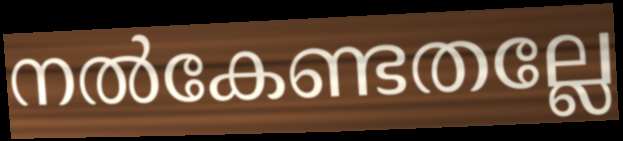
നൽകേണ്ടതല്ലേ